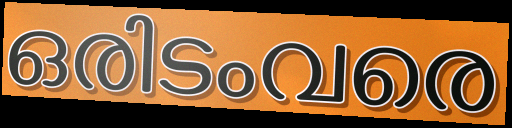
ഒരിടംവരെ